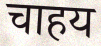
चाहय